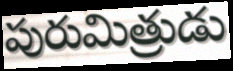
పురుమిత్రుడు